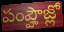
పంప్హౌజ్లో